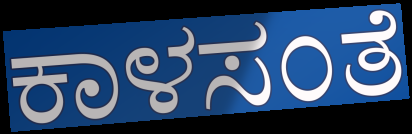
ಕಾಳಸಂತೆ